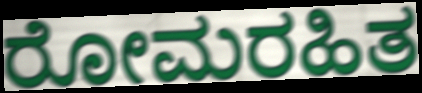
ರೋಮರಹಿತ